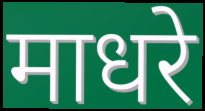
माधरे